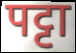
पट्टा